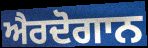
ਐਰਦੋਗਾਨ